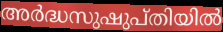
അർദ്ധസുഷുപ്തിയിൽ